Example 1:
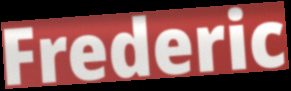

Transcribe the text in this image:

Frederic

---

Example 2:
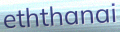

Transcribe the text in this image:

eththanai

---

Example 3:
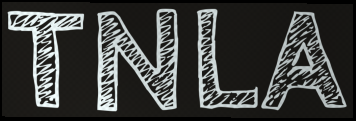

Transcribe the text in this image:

TNLA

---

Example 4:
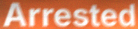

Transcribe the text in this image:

Arrested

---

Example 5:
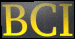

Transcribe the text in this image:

BCI